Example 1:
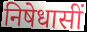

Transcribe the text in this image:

निषेधासीं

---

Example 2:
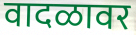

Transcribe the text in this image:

वादळावर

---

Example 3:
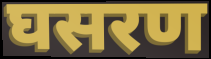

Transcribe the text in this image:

घसरण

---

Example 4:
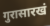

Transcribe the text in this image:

गुरासारखं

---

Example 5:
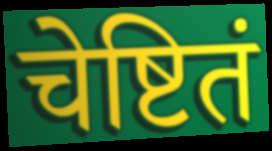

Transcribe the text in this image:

चेष्टितं